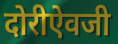
दोरीऐवजी